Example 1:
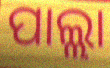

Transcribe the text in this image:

ପାଲ୍ଲା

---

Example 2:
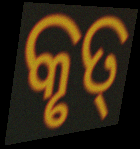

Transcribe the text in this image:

କୃତ୍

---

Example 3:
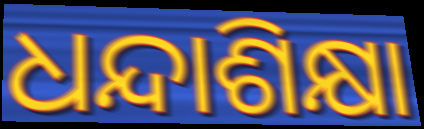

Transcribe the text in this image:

ଧନ୍ଦାଶିକ୍ଷା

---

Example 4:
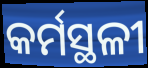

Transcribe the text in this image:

କର୍ମସ୍ଥଳୀ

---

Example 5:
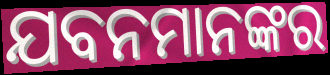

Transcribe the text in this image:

ଯବନମାନଙ୍କର